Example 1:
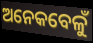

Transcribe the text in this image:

ଅନେକବେଳୁଁ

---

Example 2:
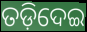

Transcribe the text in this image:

ତଡ଼ିଦେଇ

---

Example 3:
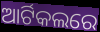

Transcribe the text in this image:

ଆର୍ଟିକଲରେ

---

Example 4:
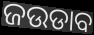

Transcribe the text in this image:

ଜଉଡାବ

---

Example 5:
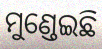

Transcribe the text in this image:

ମୁଣ୍ଡେଇଛି